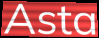
Asta